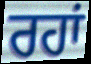
ਰਹਾਂ